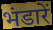
भंडारें